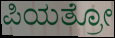
ಪಿಯತ್ರೋ